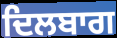
ਦਿਲਬਾਗ